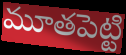
మూతపెట్టి